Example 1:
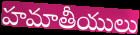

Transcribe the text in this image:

హమాతీయులు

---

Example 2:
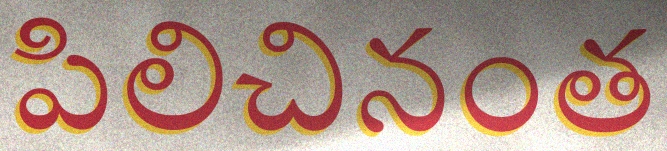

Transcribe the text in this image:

పిలిచినంత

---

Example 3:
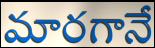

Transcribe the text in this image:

మారగానే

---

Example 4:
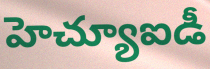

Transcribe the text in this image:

హెచ్యూఐడీ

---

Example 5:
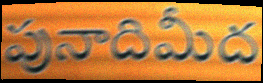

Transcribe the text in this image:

పునాదిమీద